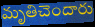
మృతిచెందారు